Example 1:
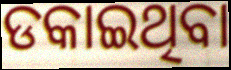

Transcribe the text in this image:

ଡକାଇଥିବା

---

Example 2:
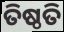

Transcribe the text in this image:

ତିଷ୍ଠତି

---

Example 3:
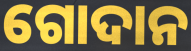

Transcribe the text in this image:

ଗୋଦାନ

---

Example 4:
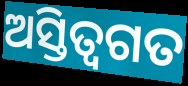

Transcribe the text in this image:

ଅସ୍ତିତ୍ବଗତ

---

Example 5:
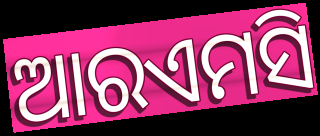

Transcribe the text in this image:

ଆରଏମସି